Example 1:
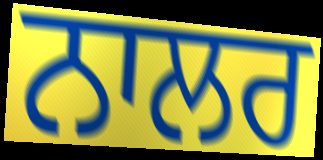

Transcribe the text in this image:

ਨਾਲਰ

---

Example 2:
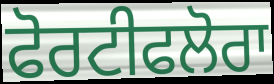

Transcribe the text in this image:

ਫੋਰਟੀਫਲੋਰਾ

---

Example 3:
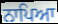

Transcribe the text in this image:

ਨਾਪਿਆ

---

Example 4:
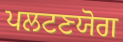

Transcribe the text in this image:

ਪਲਟਣਯੋਗ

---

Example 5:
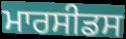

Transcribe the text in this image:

ਮਾਰਸੀਡਸ